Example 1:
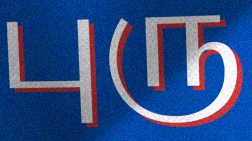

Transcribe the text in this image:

புரு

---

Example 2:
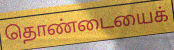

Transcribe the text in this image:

தொண்டையைக்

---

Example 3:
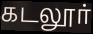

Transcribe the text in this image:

கடலூர்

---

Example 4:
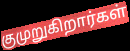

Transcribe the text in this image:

குமுறுகிறார்கள்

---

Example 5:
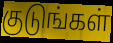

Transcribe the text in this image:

குடுங்கள்